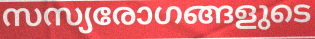
സസ്യരോഗങ്ങളുടെ